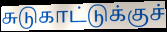
சுடுகாட்டுக்குச்